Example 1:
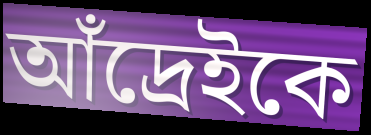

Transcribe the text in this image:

আঁদ্রেইকে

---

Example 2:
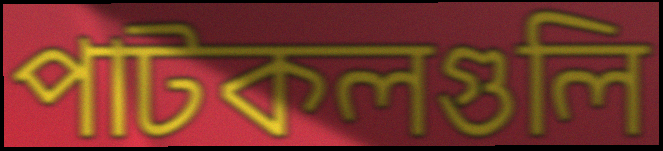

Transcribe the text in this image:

পাটকলগুলি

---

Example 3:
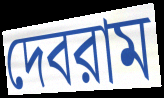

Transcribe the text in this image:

দেবরাম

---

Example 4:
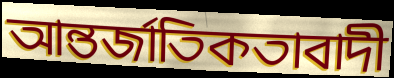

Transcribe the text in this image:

আন্তর্জাতিকতাবাদী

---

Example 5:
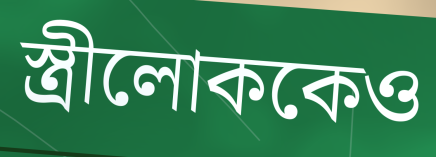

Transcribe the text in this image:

স্ত্রীলোককেও